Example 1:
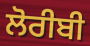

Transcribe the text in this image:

ਲੋਰੀਬੀ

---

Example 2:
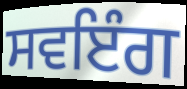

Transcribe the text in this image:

ਸਵਇੰਗ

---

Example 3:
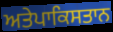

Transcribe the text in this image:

ਅਤੇਪਾਕਿਸਤਾਨ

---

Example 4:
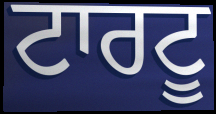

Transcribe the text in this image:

ਟਾਰਟੂ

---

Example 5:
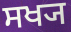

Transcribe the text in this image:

ਸਖ੍ਯ